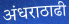
अंधराठाढी